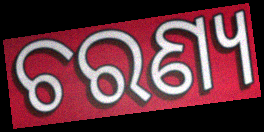
ଚରଣ୍ୟ